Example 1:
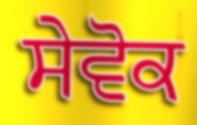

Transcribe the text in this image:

ਸੇਵੋਕ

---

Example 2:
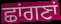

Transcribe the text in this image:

ਛਾਂਗਣਾਂ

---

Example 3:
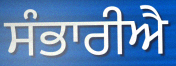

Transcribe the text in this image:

ਸੰਭਾਰੀਐ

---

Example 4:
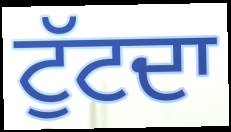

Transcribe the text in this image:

ਟੁੱਟਦਾ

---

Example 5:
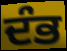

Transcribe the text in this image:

ਦੰਭ